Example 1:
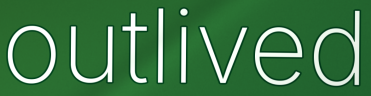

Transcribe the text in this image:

outlived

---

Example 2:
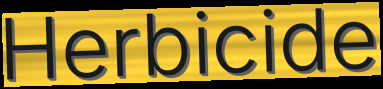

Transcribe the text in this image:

Herbicide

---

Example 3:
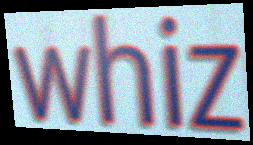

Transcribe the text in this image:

whiz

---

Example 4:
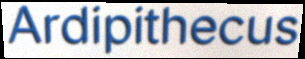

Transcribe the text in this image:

Ardipithecus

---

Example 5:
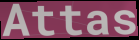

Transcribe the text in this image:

Attas